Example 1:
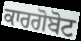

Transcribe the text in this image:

ਕਾਰਗੋਬੋਟ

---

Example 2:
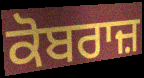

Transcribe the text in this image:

ਕੋਬਰਾਜ਼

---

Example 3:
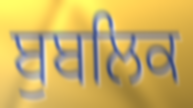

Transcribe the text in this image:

ਬੁਬਲਿਕ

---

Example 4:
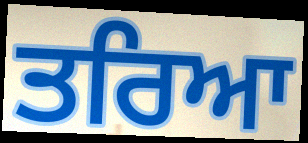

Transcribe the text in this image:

ਤਰਿਆ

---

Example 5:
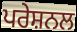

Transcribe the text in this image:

ਪਰੇਸ਼ਨਲ